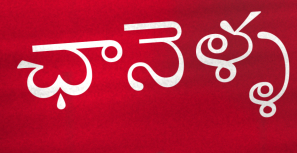
ఛానెళ్ళ